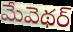
మేవెథర్